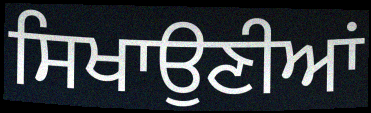
ਸਿਖਾਉਣੀਆਂ